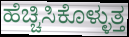
ಹೆಚ್ಚಿಸಿಕೊಳ್ಳುತ್ತ